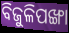
ବିଜୁଳିପଙ୍ଖା